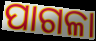
ପାଗଳା